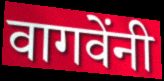
वागवेंनी